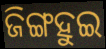
ଜିଙ୍ଗହୁଇ